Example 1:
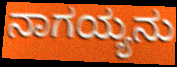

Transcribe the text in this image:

ನಾಗಯ್ಯನು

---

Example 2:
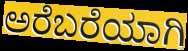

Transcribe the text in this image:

ಅರೆಬರೆಯಾಗಿ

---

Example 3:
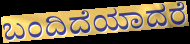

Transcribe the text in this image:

ಬಂದಿದೆಯಾದರೆ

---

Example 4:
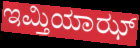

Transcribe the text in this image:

ಇಮ್ತಿಯಾಝ್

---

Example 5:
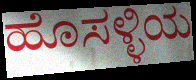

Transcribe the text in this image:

ಹೊಸಳ್ಳಿಯ